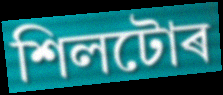
শিলটোৰ